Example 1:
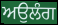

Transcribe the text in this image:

ਅਉਲੰਗ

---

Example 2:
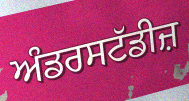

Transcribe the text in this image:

ਅੰਡਰਸਟੱਡੀਜ਼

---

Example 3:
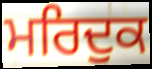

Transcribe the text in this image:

ਮਰਿਦੁਕ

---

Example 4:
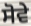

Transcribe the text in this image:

ਸੋਵੇ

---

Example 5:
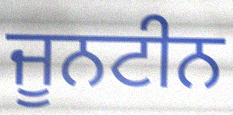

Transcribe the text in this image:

ਜੂਨਟੀਨ